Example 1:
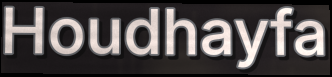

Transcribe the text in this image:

Houdhayfa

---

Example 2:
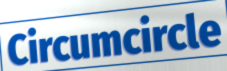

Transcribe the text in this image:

Circumcircle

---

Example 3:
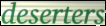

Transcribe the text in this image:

deserters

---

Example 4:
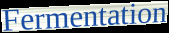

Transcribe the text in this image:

Fermentation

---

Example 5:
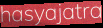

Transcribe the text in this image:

hasyajatra